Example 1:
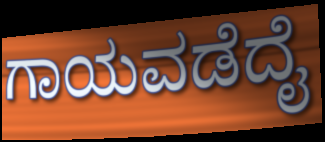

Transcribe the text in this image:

ಗಾಯವಡೆದೈ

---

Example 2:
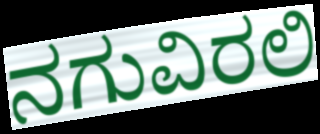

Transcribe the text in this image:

ನಗುವಿರಲಿ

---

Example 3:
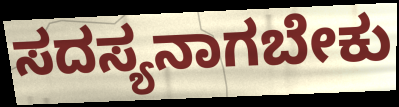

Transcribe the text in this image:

ಸದಸ್ಯನಾಗಬೇಕು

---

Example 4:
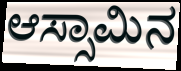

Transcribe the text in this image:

ಆಸ್ಸಾಮಿನ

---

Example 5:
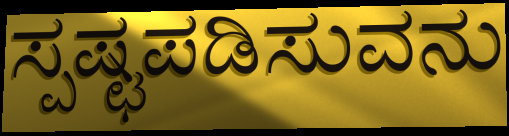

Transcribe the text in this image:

ಸ್ಪಷ್ಟಪಡಿಸುವನು